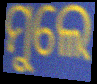
ମୁଲେ